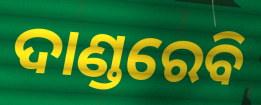
ଦାଣ୍ଡରେବି